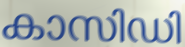
കാസിഡി